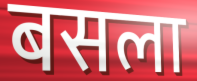
बसला